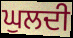
ਘੁਲਦੀ